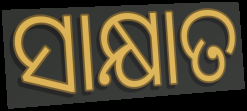
ସାକ୍ଷାତ